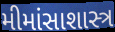
મીમાંસાશાસ્ત્ર